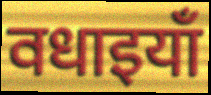
वधाइयाँ